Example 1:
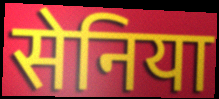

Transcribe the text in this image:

सेनिया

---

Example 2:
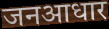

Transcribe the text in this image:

जनआधार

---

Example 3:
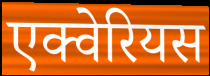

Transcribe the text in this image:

एक्वेरियस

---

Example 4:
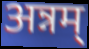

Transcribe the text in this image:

अन्नम्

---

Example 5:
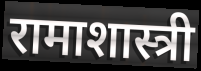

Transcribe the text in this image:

रामाशास्त्री